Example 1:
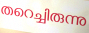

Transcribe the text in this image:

തറെച്ചിരുന്നു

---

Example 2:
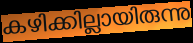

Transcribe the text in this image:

കഴിക്കില്ലായിരുന്നു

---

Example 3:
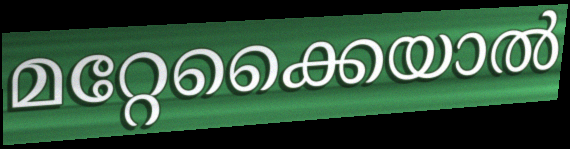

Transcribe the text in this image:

മറ്റേക്കൈയാൽ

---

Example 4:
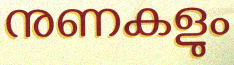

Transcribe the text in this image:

നുണകളും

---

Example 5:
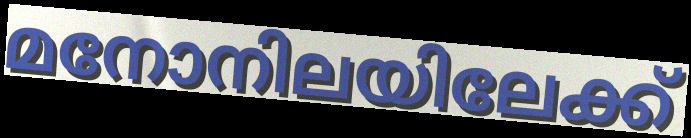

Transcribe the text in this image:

മനോനിലയിലേക്ക്